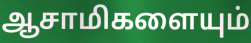
ஆசாமிகளையும்